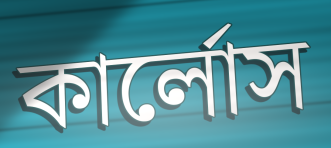
কার্লোস